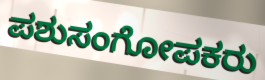
ಪಶುಸಂಗೋಪಕರು